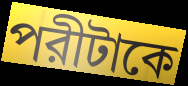
পরীটাকে